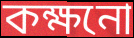
কক্ষনো